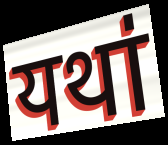
यथा॑